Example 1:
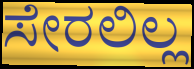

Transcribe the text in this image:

ಸೇರಲಿಲ್ಲ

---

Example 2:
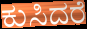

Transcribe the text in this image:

ಕುಸಿದರೆ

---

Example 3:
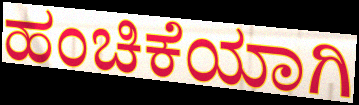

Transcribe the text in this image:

ಹಂಚಿಕೆಯಾಗಿ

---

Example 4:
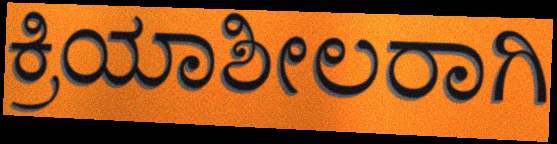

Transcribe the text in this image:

ಕ್ರಿಯಾಶೀಲರಾಗಿ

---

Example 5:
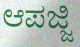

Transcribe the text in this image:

ಆಪಜ್ಜಿ